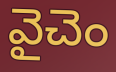
వైచెం